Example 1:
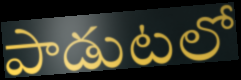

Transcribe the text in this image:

పాడుటలో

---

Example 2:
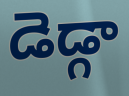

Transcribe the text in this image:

డెడ్గా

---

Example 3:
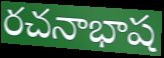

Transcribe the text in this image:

రచనాభాష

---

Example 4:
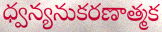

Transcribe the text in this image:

ధ్వన్యనుకరణాత్మక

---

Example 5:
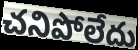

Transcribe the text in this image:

చనిపోలేదు